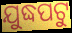
ଯୁଦ୍ଧପଟୁ